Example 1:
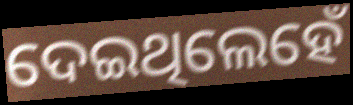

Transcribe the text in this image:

ଦେଇଥିଲେହେଁ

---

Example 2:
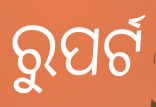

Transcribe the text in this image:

ରୁପର୍ଟ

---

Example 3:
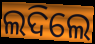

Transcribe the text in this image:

ଲଦିଲେ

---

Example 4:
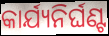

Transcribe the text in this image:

କାର୍ଯ୍ୟନିର୍ଘଣ୍ଟ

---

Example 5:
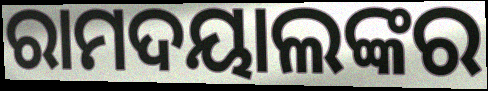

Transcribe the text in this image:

ରାମଦୟାଲଙ୍କର